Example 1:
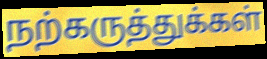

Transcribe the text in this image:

நற்கருத்துக்கள்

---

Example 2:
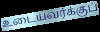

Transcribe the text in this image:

உடையவர்க்குப்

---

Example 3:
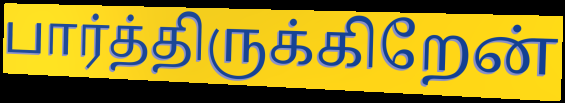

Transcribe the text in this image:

பார்த்திருக்கிறேன்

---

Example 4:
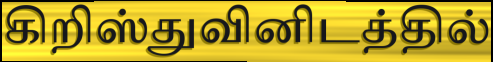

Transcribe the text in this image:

கிறிஸ்துவினிடத்தில்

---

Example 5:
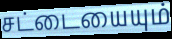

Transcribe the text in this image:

சட்டையையும்